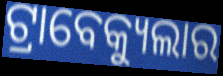
ଟ୍ରାବେକ୍ୟୁଲାର